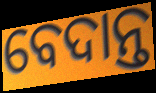
ବେଦାନ୍ତ